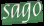
sago